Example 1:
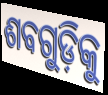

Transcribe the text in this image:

ଶବଗୁଡ଼ିକୁ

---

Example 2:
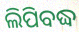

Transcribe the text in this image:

ଲିପିବଦ୍ଧ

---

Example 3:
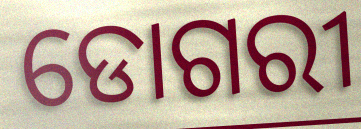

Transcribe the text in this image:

ଡୋଗରୀ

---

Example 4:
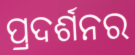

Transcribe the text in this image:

ପ୍ରଦର୍ଶନର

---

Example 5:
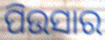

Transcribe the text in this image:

ପିଉସାର